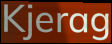
Kjerag